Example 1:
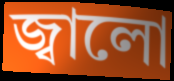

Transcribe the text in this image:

জ্বালো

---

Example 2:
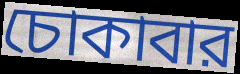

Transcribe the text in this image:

চোকাবার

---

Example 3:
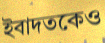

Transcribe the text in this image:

ইবাদতকেও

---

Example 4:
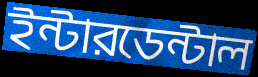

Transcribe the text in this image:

ইন্টারডেন্টাল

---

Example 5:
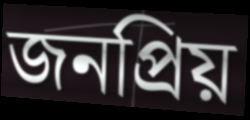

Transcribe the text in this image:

জনপ্রিয়